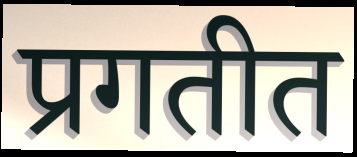
प्रगतीत